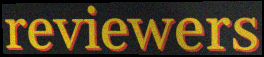
reviewers